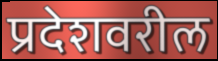
प्रदेशवरील